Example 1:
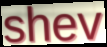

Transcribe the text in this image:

shev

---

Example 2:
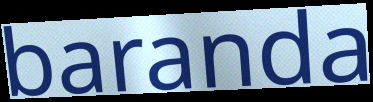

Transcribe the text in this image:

baranda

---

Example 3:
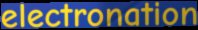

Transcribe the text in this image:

electronation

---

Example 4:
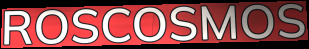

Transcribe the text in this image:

ROSCOSMOS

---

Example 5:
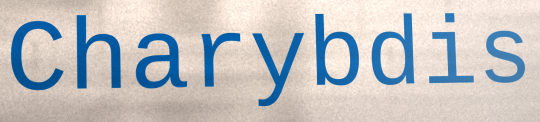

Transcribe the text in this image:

Charybdis